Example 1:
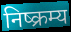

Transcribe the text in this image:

निष्क्रम्य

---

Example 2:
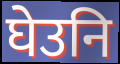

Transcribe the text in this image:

घेउनि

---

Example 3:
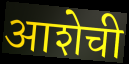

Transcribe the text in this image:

आशेची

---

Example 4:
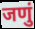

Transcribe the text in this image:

जणुं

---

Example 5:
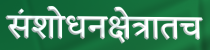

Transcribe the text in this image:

संशोधनक्षेत्रातच